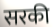
सरकी